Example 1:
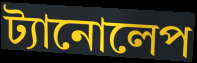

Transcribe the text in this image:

ট্যানোলেপ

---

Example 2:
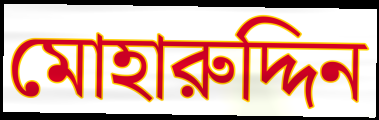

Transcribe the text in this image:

মোহারুদ্দিন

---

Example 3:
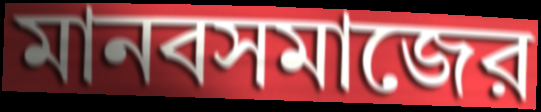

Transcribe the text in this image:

মানবসমাজের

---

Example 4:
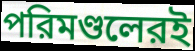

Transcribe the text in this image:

পরিমণ্ডলেরই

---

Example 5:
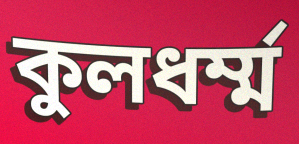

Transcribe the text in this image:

কুলধর্ম্ম